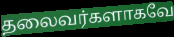
தலைவர்களாகவே